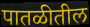
पातळीतील